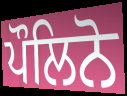
ਪੌਲਿਨੋ